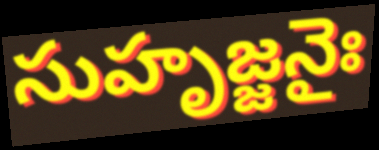
సుహృజ్జనైః